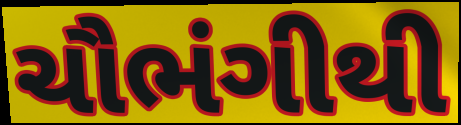
ચૌભંગીથી